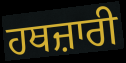
ਹਥਜ਼ਾਰੀ